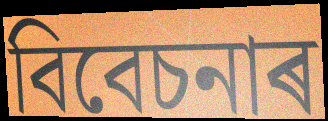
বিবেচনাৰ